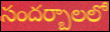
సందర్బాలలో